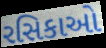
રસિકાઓ